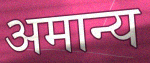
अमान्य